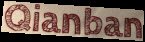
Qianban